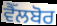
ਵੈੱਲਬੋਰ